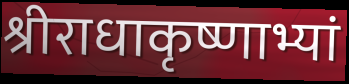
श्रीराधाकृष्णाभ्यां